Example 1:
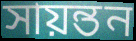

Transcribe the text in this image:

সায়ন্তন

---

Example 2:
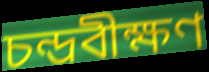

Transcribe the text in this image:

চন্দ্রবীক্ষণ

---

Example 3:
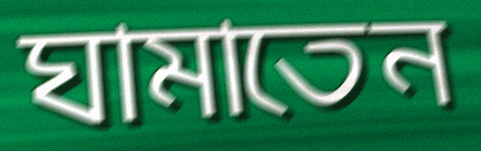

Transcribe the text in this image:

ঘামাতেন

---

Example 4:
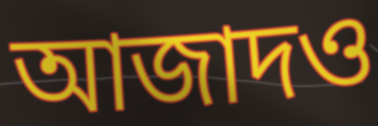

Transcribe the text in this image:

আজাদও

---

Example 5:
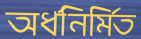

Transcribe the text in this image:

অর্ধনির্মিত